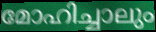
മോഹിച്ചാലും